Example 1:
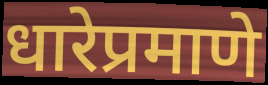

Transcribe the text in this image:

धारेप्रमाणे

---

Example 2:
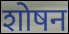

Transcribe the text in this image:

शोषन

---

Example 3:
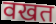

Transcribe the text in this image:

वखत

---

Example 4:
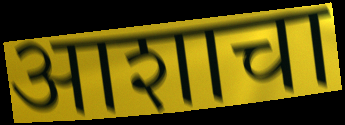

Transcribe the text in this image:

आशाचा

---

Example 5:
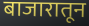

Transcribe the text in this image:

बाजारातून